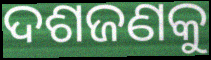
ଦଶଜଣକୁ